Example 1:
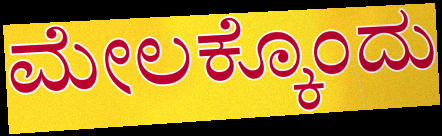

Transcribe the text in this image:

ಮೇಲಕ್ಕೊಂದು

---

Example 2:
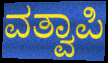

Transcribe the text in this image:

ವತ್ವಾಪಿ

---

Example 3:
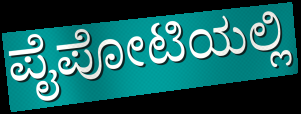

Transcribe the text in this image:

ಪೈಪೋಟಿಯಲ್ಲಿ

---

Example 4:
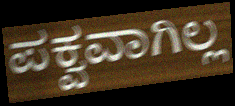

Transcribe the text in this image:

ಪಕ್ವವಾಗಿಲ್ಲ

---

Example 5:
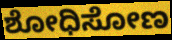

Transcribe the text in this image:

ಶೋಧಿಸೋಣ